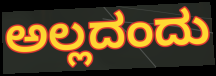
ಅಲ್ಲದಂದು